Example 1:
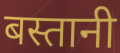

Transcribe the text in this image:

बस्तानी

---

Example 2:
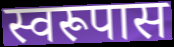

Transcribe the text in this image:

स्वरूपास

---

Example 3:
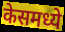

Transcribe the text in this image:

केसमध्ये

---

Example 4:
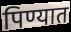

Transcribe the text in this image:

पिण्यात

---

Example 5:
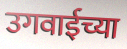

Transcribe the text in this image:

उगवाईच्या